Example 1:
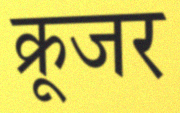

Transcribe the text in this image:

क्रूजर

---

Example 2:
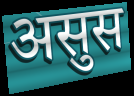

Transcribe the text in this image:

असुस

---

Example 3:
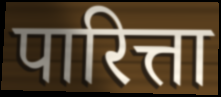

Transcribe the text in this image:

पारित्ता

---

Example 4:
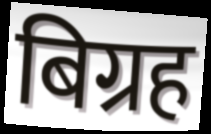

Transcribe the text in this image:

बिग्रह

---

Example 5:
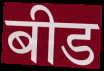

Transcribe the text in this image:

बीड